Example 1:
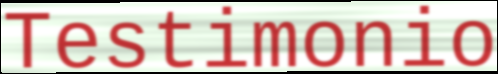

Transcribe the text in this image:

Testimonio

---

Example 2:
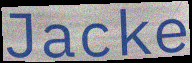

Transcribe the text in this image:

Jacke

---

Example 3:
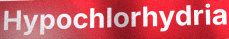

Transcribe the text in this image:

Hypochlorhydria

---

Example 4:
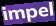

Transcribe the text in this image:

impel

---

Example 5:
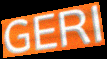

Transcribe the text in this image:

GERI